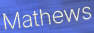
Mathews